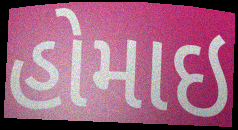
હોમાઇ